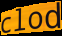
clod